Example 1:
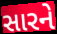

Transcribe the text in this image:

સારને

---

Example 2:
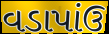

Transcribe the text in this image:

વડાપાંઉ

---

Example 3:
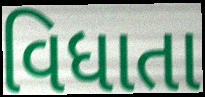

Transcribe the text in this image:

વિધાતા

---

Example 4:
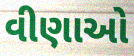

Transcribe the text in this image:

વીણાઓ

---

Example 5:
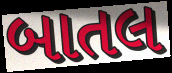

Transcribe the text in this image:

બાતલ